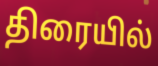
திரையில்